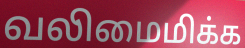
வலிமைமிக்க